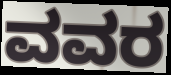
ವವರ